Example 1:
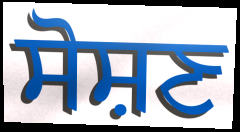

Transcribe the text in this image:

ਸੋਸ਼ਣ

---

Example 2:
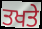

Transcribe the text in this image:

ਤਖਤੇ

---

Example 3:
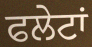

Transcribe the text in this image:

ਫਲੇਟਾਂ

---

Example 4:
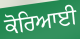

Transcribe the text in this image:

ਕੋਰਿਆਈ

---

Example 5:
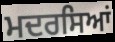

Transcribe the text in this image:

ਮਦਰਸਿਆਂ